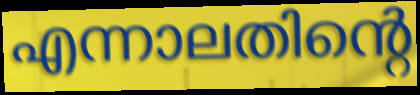
എന്നാലതിന്റെ